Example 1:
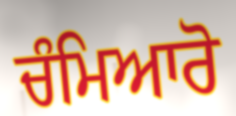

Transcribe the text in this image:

ਚੰਮਿਆਰੋ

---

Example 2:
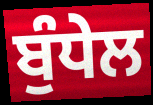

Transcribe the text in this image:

ਬੁੰਧੇਲ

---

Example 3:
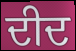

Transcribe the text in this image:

ਦੀਦ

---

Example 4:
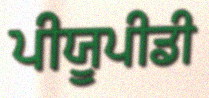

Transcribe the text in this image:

ਪੀਯੂਪੀਡੀ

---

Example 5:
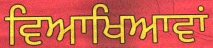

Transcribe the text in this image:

ਵਿਆਖਿਆਵਾਂ